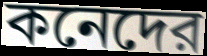
কনেদের